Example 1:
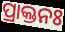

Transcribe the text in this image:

ପ୍ରାକ୍ତନଃ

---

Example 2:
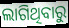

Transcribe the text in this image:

ଲାଗିଥିବାରୁ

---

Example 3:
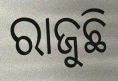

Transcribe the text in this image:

ରାଜୁଛି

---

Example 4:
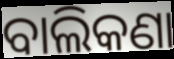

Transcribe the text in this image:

ବାଲିକଣା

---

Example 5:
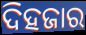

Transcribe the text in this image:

ଦିହଜାର